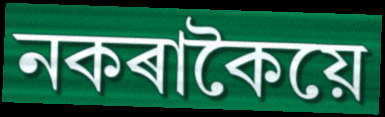
নকৰাকৈয়ে